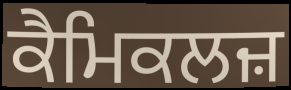
ਕੈਮਿਕਲਜ਼